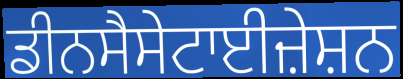
ਡੀਨਸੈਸੇਟਾਈਜ਼ੇਸ਼ਨ